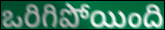
ఒరిగిపోయింది